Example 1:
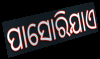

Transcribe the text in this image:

ପାସୋରିଯାଏ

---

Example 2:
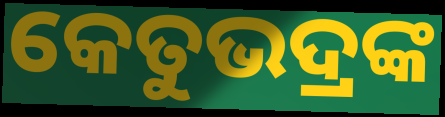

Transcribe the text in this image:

କେତୁଭଦ୍ରଙ୍କ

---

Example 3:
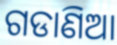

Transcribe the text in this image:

ଗଡାଣିଆ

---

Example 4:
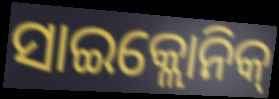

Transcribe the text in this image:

ସାଇକ୍ଲୋନିକ୍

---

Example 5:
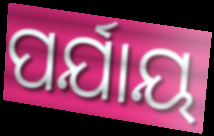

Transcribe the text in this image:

ପର୍ଯାୟ